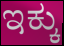
ಇಕ್ಕು